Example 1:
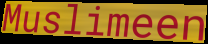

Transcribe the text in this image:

Muslimeen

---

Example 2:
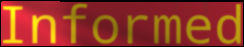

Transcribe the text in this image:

Informed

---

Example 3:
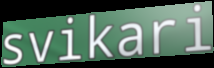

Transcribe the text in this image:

svikari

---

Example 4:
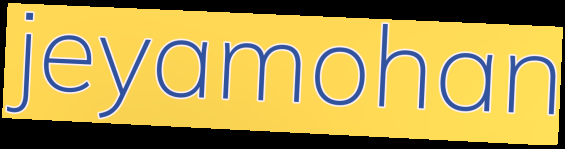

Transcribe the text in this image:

jeyamohan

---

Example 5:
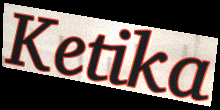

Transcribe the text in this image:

Ketika